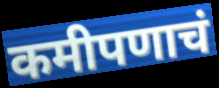
कमीपणाचं